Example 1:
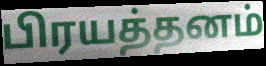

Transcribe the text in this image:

பிரயத்தனம்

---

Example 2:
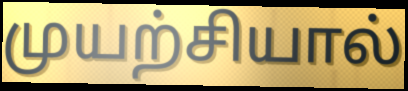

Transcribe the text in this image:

முயற்சியால்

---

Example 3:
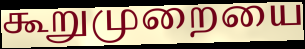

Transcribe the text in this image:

கூறுமுறையை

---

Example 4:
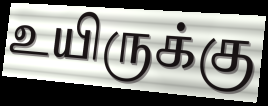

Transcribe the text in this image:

உயிருக்கு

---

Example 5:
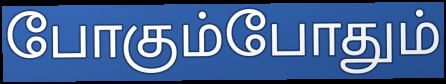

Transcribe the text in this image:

போகும்போதும்